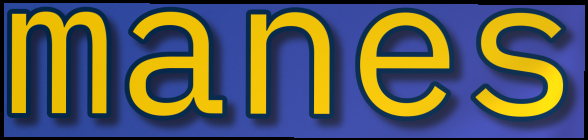
manes